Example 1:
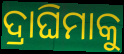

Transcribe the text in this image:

ଦ୍ରାଘିମାକୁ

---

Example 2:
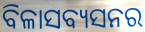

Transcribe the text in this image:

ବିଳାସବ୍ୟସନର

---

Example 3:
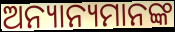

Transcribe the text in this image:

ଅନ୍ୟାନ୍ୟମାନଙ୍କ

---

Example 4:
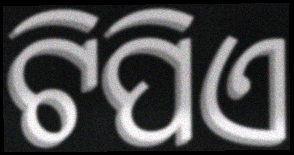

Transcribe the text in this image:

ଟିପିଏ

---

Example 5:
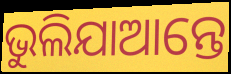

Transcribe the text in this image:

ଭୁଲିଯାଆନ୍ତେ